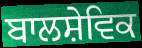
ਬਾਲਸ਼ੇਵਿਕ